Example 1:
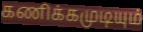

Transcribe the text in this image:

கணிக்கமுடியும்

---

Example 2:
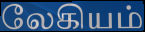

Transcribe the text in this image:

லேகியம்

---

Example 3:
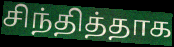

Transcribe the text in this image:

சிந்தித்தாக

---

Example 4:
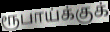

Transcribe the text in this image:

ரூபாய்க்குக்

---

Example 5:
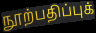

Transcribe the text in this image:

நூற்பதிப்புக்